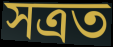
সত্ৰত